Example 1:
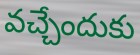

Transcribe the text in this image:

వచ్చేందుకు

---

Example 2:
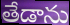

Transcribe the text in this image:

తేడాను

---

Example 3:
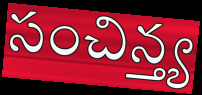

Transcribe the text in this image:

సంచిన్త్య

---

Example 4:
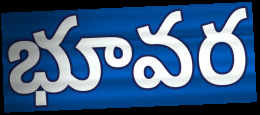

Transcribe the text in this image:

భూవర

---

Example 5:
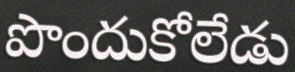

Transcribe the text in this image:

పొందుకోలేడు